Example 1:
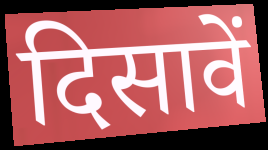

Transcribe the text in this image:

दिसावें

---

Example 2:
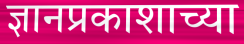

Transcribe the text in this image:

ज्ञानप्रकाशाच्या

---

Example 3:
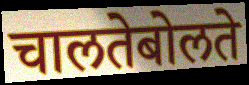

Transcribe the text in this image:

चालतेबोलते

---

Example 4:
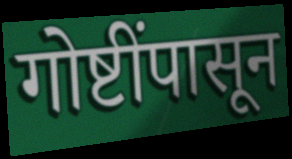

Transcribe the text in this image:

गोष्टींपासून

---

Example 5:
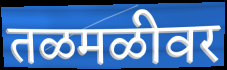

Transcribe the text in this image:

तळमळीवर